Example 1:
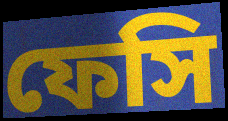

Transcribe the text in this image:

ফেসি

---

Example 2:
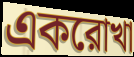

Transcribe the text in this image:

একরোখা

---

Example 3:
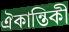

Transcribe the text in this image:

ঐকান্তিকী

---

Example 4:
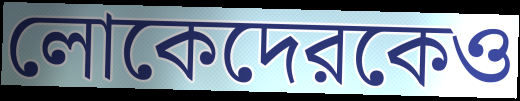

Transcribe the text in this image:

লোকেদেরকেও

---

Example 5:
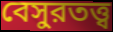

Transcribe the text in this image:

বেসুরতত্ত্ব